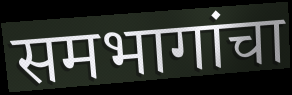
समभागांचा